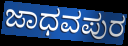
ಜಾಧವಪುರ